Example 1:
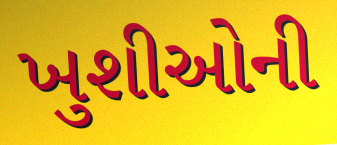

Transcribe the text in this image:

ખુશીઓની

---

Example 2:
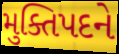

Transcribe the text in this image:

મુક્તિપદને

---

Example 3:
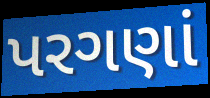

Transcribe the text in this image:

પરગણાં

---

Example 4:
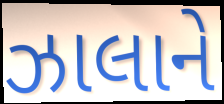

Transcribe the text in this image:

ઝાલાને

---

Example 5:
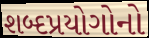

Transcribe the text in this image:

શબ્દપ્રયોગોનો